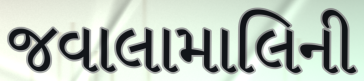
જવાલામાલિની